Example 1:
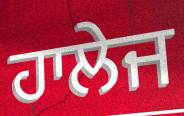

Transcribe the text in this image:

ਹਾਲੇਜ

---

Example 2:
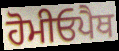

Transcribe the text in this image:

ਹੋਮੀਓਪੈਥ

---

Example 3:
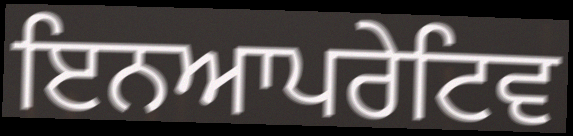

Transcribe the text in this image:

ਇਨਆਪਰੇਟਿਵ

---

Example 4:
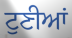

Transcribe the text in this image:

ਟੁਣੀਆਂ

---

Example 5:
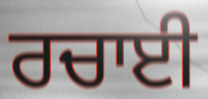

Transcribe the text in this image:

ਰਚਾਈ